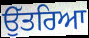
ਉੱਤਰਿਆ